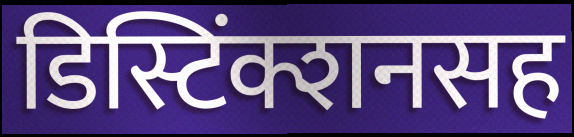
डिस्टिंक्शनसह